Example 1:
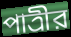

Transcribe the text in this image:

পাত্রীর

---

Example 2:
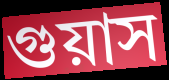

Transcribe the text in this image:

গুয়াস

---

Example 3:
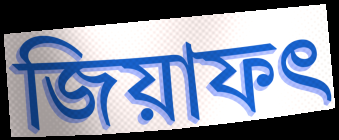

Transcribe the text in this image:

জিয়াফৎ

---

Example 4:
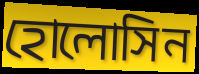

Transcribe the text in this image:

হোলোসিন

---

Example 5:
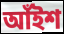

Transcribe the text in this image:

আঁইশ